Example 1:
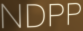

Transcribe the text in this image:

NDPP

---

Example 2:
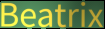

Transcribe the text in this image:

Beatrix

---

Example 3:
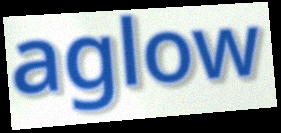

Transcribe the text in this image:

aglow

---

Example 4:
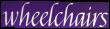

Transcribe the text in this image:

wheelchairs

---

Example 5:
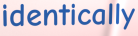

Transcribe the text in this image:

identically